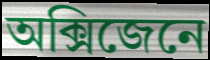
অক্সিজেনে